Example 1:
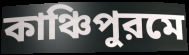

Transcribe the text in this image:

কাঞ্চিপুরমে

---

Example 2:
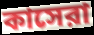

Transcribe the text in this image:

কাসেরা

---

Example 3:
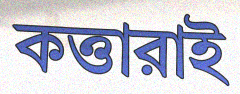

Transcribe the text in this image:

কত্তারাই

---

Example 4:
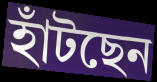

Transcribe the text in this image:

হাঁটছেন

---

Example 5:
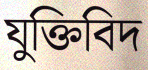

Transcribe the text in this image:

যুক্তিবিদ